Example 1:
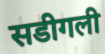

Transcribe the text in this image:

सडीगली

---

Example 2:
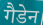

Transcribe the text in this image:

गैडेन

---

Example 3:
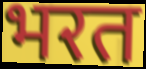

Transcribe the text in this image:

भरत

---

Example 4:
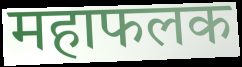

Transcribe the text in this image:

महाफलक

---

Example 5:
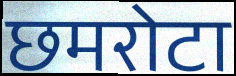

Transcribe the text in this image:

छमरोटा